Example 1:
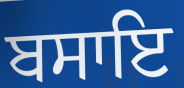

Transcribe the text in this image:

ਬਸਾਇ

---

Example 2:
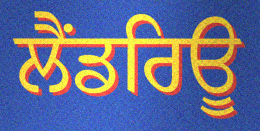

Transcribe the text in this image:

ਲੈਂਡਰਿਊ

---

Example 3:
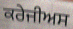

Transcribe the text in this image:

ਕਰੇਜੀਅਸ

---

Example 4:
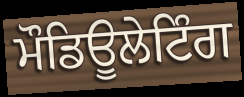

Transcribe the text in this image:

ਮੌਡਿਊਲੇਟਿੰਗ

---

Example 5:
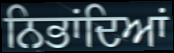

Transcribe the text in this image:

ਨਿਭਾਂਦਿਆਂ